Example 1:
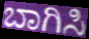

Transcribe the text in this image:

ಬಾಗಿಸಿ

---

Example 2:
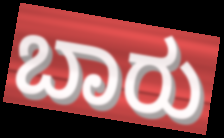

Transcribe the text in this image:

ಬಾರು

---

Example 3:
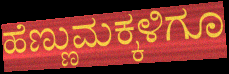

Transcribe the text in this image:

ಹೆಣ್ಣುಮಕ್ಕಳಿಗೂ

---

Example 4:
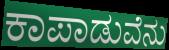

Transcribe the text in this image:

ಕಾಪಾಡುವೆನು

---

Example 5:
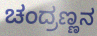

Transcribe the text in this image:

ಚಂದ್ರಣ್ಣನ